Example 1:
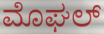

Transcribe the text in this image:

ಮೊಘಲ್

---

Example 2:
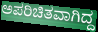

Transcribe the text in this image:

ಅಪರಿಚಿತವಾಗಿದ್ದ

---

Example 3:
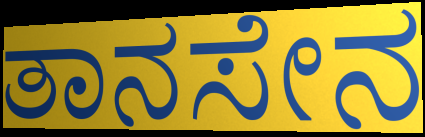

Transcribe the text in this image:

ತಾನಸೇನ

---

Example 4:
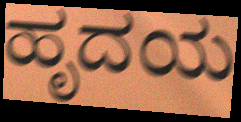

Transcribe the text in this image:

ಹೃದಯ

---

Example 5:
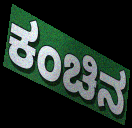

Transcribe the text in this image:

ಕಂಚಿನ